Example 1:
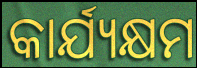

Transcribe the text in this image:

କାର୍ଯ୍ୟକ୍ଷମ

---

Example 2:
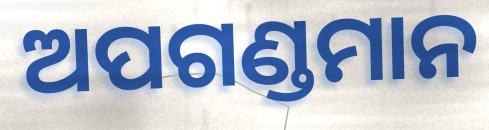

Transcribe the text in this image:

ଅପଗଣ୍ଡମାନ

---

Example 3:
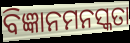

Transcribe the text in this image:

ବିଜ୍ଞାନମନସ୍କତା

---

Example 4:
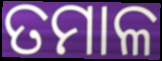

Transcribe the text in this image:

ତମାଳ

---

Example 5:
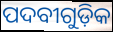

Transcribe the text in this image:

ପଦବୀଗୁଡ଼ିକ